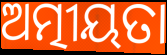
ଅତ୍ମୀୟତା